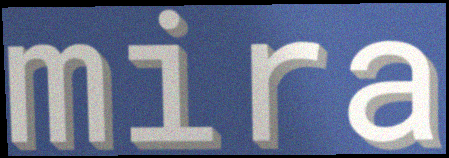
mira